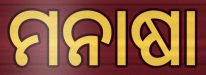
ମନାଷା